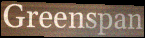
Greenspan